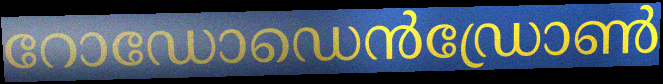
റോഡോഡെൻഡ്രോൺ